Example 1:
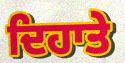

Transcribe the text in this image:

ਦਿਹਾਤੇ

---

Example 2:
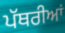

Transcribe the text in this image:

ਪੱਥਰੀਆਂ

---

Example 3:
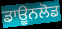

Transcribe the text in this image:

ਡਾਊਨਲੋਡ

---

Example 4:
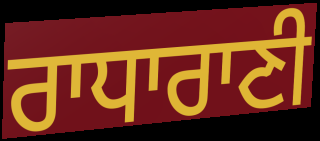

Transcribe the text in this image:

ਰਾਧਾਰਾਣੀ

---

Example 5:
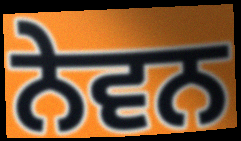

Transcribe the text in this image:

ਨੇਵਨ